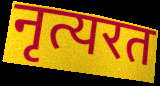
नृत्यरत